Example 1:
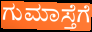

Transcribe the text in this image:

ಗುಮಾಸ್ತೆಗೆ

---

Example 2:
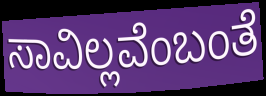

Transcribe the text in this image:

ಸಾವಿಲ್ಲವೆಂಬಂತೆ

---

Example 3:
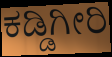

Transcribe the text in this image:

ಕಡ್ಡಿಗೀರಿ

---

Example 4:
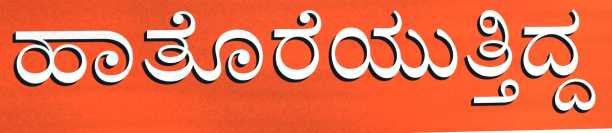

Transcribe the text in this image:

ಹಾತೊರೆಯುತ್ತಿದ್ದ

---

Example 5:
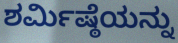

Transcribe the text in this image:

ಶರ್ಮಿಷ್ಠೆಯನ್ನು